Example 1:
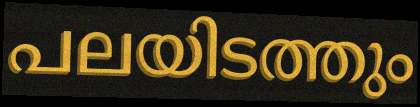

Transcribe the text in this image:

പലയിടത്തും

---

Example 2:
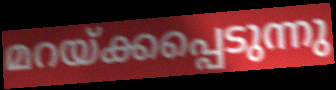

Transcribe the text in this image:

മറയ്ക്കപ്പെടുന്നു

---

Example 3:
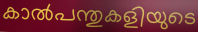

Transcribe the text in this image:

കാൽപന്തുകളിയുടെ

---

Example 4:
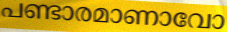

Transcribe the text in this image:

പണ്ടാരമാണാവോ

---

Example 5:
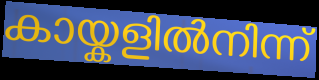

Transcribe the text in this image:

കായ്കളിൽനിന്ന്